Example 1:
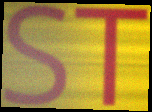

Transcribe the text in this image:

ST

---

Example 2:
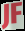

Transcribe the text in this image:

JF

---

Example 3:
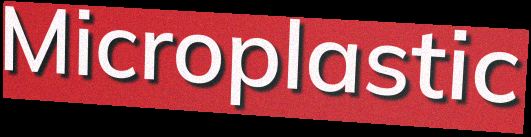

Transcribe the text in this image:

Microplastic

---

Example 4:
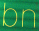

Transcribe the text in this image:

bn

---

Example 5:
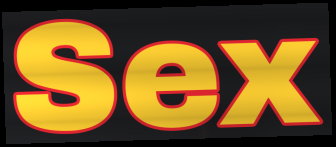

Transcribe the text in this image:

Sex